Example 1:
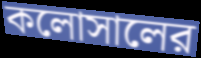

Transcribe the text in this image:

কলোসালের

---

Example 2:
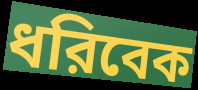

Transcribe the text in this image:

ধরিবেক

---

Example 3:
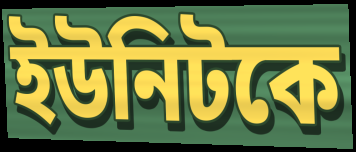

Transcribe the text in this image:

ইউনিটকে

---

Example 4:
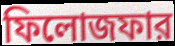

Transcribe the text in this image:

ফিলোজফার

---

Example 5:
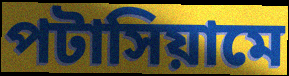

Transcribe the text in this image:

পটাসিয়ামে